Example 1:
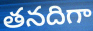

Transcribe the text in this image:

తనదిగా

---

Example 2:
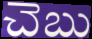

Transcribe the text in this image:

చెబు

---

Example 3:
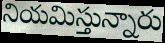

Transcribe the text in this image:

నియమిస్తున్నారు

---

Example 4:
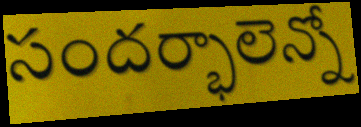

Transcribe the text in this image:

సందర్భాలెన్నో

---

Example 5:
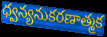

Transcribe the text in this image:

ధ్వన్యనుకరణాత్మక